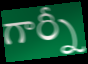
గార్నీ